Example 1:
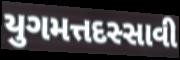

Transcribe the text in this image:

યુગમત્તદસ્સાવી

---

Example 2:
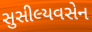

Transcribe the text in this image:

સુસીલ્યવસેન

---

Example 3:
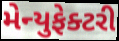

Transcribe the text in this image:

મેન્યુફેક્ટરી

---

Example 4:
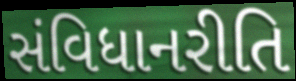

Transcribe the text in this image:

સંવિધાનરીતિ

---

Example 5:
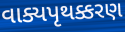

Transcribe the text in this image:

વાક્યપૃથક્કરણ